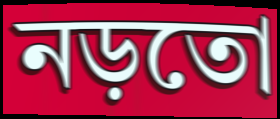
নড়তো